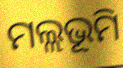
ମଲ୍ଲଭୂମି